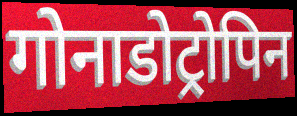
गोनाडोट्रोपिन